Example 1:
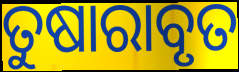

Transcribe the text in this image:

ତୁଷାରାବୃତ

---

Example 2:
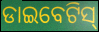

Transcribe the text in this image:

ଡାଇବେଟିସ୍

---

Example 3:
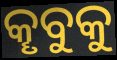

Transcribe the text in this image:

କୄବୁକୁ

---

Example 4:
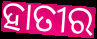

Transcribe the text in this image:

ହାତୀର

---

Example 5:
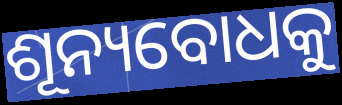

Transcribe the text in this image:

ଶୂନ୍ୟବୋଧକୁ